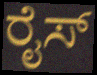
ರೈಸ್